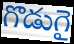
గొడుగై